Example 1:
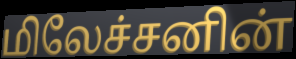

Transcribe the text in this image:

மிலேச்சனின்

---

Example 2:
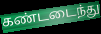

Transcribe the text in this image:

கண்டடைந்து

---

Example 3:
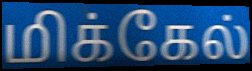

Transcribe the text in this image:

மிக்கேல்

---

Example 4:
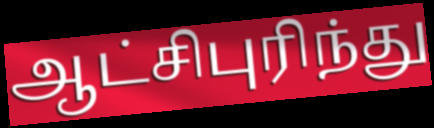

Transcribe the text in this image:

ஆட்சிபுரிந்து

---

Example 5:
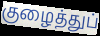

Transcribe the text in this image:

குழைத்துப்